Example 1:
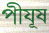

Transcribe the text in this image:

পীযূষ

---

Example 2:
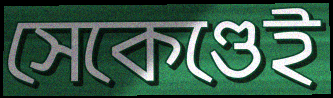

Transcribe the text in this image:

সেকেণ্ডেই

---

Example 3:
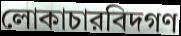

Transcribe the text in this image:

লোকাচারবিদগণ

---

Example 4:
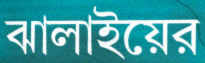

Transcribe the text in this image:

ঝালাইয়ের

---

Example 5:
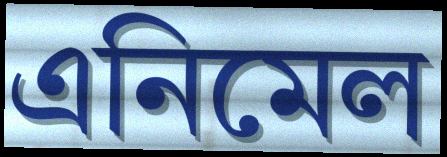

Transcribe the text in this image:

এনিমেল